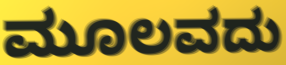
ಮೂಲವದು